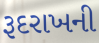
રૂદરાખની